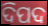
ଦିପଦ